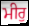
ਮੀਰੁ